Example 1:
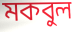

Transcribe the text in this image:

মকবুল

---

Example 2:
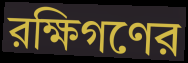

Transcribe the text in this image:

রক্ষিগণের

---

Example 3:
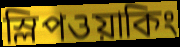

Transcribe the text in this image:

স্লিপওয়াকিং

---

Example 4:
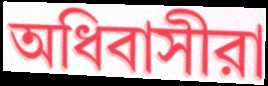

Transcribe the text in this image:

অধিবাসীরা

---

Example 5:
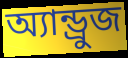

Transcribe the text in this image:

অ্যান্ড্রুজ